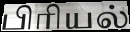
பிரியல்